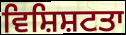
ਵਿਸ਼ਿਸ਼ਟਤਾ